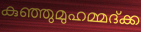
കുഞ്ഞുമുഹമ്മദ്ക്ക